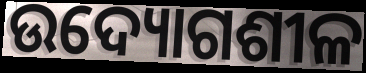
ଉଦ୍ୟୋଗଶୀଳ